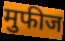
मुफीज